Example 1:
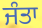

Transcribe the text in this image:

ਜੰਤਾ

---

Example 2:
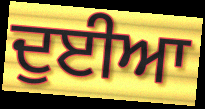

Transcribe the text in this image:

ਦੁਈਆ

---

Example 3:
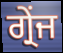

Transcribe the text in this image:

ਗ੍ਰੇਂਜ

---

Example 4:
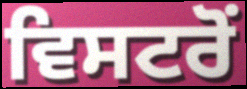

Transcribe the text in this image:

ਵਿਸਟਰੋਂ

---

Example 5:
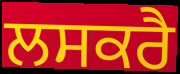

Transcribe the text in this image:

ਲਸਕਰੈ